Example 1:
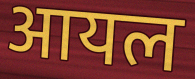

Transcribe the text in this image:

आयल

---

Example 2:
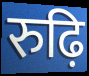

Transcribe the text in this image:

रुढ़ि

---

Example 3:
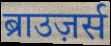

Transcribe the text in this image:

ब्राउज़र्स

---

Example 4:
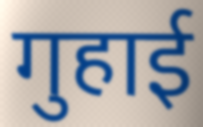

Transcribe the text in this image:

गुहाई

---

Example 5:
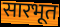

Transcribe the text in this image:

सारभूत